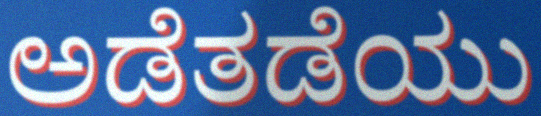
ಅಡೆತಡೆಯು